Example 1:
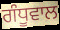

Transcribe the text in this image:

ਗੰਧੂਵਾਲ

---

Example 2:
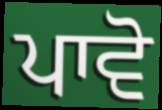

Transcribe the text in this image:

ਪਾਵੋ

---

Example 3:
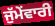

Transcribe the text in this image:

ਜੁੱਮੇਂਵਾਰੀ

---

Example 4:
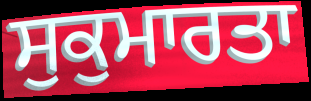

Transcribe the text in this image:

ਸੁਕੁਮਾਰਤਾ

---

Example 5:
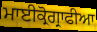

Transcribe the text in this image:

ਮਾਈਕ੍ਰੋਗ੍ਰਾਫੀਆ